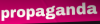
propaganda